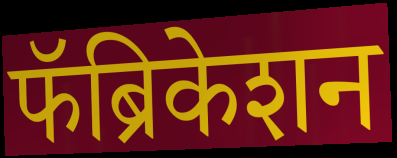
फॅब्रिकेशन